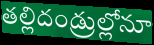
తల్లిదండ్రుల్లోనూ